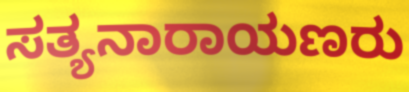
ಸತ್ಯನಾರಾಯಣರು